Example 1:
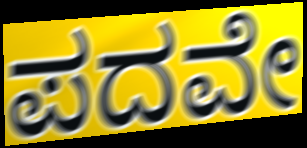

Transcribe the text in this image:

ಪದವೇ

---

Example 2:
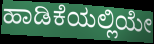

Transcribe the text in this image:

ಹಾಡಿಕೆಯಲ್ಲಿಯೇ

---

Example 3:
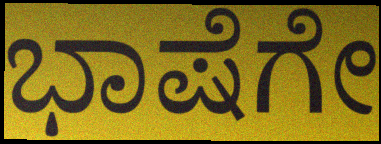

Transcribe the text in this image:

ಭಾಷೆಗೇ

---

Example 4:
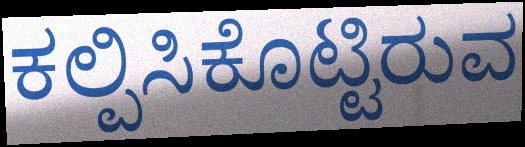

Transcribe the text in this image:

ಕಲ್ಪಿಸಿಕೊಟ್ಟಿರುವ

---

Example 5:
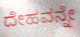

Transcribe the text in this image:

ದೇಹವನ್ನೇ